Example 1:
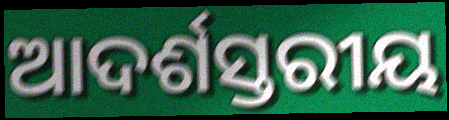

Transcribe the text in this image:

ଆଦର୍ଶସ୍ତରୀୟ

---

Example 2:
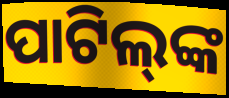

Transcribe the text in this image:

ପାଟିଲ୍‌ଙ୍କ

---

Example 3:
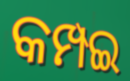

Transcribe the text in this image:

କମ୍ପଇ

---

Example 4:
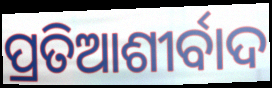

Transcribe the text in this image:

ପ୍ରତିଆଶୀର୍ବାଦ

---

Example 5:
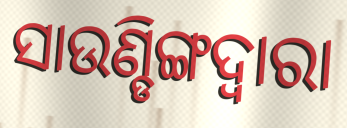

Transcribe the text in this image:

ସାଉଣ୍ଡିଙ୍ଗଦ୍ୱାରା